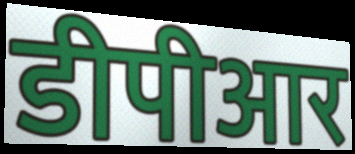
डीपीआर